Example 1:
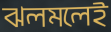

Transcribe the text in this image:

ঝলমলেই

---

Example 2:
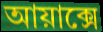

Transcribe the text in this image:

আয়াক্সে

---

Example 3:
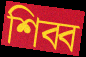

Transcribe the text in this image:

শিব্ব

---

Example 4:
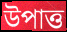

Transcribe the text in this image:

উপাত্ত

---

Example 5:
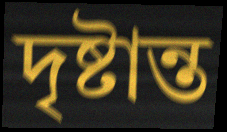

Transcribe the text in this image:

দৃষ্টান্ত